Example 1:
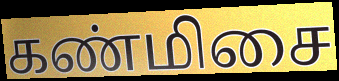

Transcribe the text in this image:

கண்மிசை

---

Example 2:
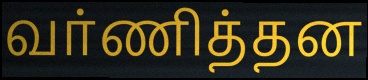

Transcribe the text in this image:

வர்ணித்தன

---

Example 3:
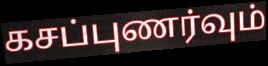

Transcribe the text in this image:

கசப்புணர்வும்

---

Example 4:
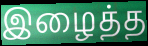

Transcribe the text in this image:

இழைத்த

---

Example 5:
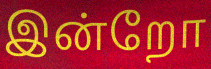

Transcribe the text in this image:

இன்றோ